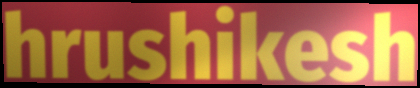
hrushikesh